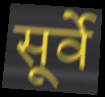
सूर्वे